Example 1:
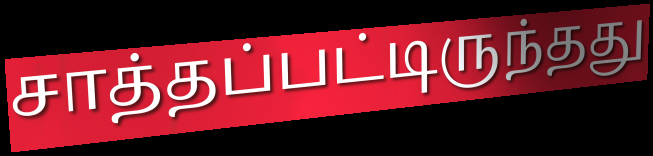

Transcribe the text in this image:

சாத்தப்பட்டிருந்தது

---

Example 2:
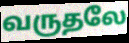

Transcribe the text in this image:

வருதலே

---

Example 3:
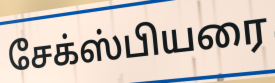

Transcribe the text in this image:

சேக்ஸ்பியரை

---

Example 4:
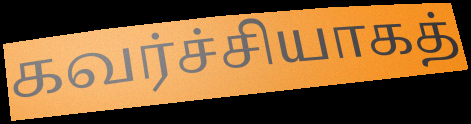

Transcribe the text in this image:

கவர்ச்சியாகத்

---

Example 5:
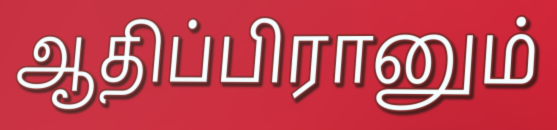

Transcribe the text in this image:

ஆதிப்பிரானும்